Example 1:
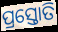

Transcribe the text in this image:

ପ୍ରସ୍ତୋତି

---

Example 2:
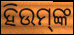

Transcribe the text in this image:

ହିଉମ୍‌ଙ୍କ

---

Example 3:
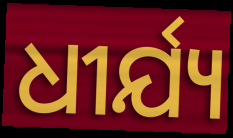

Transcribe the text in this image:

ଧୀର୍ଯ୍ୟ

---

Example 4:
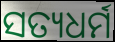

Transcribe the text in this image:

ସତ୍ୟଧର୍ମ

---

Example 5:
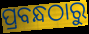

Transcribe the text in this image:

ପ୍ରବନ୍ଧଠାରୁ